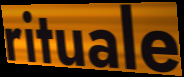
rituale